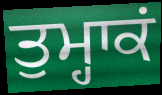
ਤੁਮ੍ਹਾਕਂ